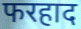
फरहाद